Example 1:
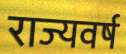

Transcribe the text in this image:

राज्यवर्ष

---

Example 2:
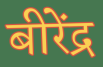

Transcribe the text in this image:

बीरेंद्र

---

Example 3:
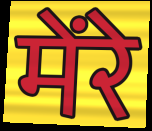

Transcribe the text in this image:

मेंरे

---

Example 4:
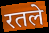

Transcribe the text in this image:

रतले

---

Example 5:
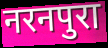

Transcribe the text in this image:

नरनपुरा